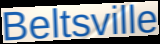
Beltsville